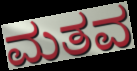
ಮತವ